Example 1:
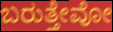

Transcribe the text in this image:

ಬರುತ್ತೇವೋ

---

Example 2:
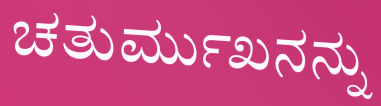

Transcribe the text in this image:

ಚತುರ್ಮುಖನನ್ನು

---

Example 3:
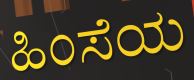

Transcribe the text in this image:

ಹಿಂಸೆಯ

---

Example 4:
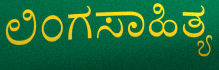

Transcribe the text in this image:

ಲಿಂಗಸಾಹಿತ್ಯ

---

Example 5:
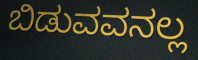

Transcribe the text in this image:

ಬಿಡುವವನಲ್ಲ